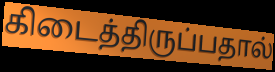
கிடைத்திருப்பதால்